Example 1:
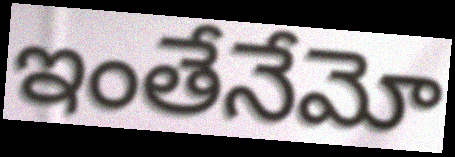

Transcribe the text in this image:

ఇంతేనేమో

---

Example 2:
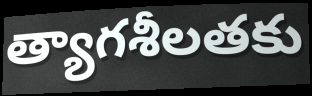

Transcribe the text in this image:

త్యాగశీలతకు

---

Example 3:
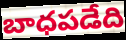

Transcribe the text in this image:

బాధపడేది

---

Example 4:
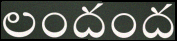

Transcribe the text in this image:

లందంద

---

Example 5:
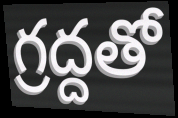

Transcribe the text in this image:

గ్రద్దతో